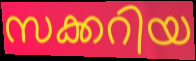
സക്കറിയ